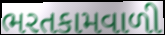
ભરતકામવાળી